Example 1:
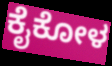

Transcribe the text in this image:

ಕೈಕೋಳ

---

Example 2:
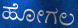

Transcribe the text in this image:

ಹೋಗಲ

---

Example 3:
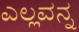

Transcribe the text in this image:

ಎಲ್ಲವನ್ನ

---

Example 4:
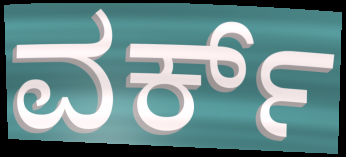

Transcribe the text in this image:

ವರ್ಕ್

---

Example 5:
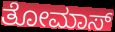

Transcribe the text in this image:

ತೋಮಾಸ್